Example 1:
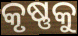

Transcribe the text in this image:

କୃଷ୍ଣକୁ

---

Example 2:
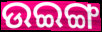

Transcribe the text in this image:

ଉଇଙ୍ଗ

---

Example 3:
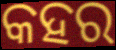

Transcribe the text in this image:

କହର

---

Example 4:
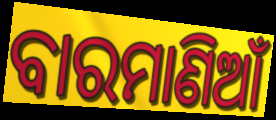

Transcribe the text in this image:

ବାରମାଣିଆଁ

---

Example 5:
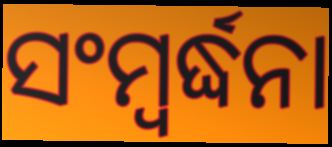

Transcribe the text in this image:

ସଂମ୍ବର୍ଦ୍ଧନା